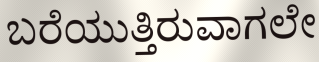
ಬರೆಯುತ್ತಿರುವಾಗಲೇ